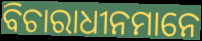
ବିଚାରାଧୀନମାନେ